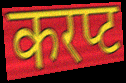
करप्ट